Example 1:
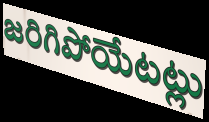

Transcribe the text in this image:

జరిగిపోయేటట్లు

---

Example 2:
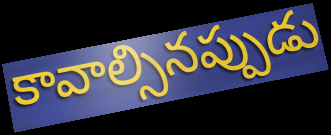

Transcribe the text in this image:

కావాల్సినప్పుడు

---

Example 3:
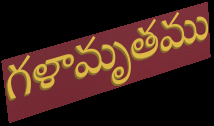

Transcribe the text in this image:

గళామృతము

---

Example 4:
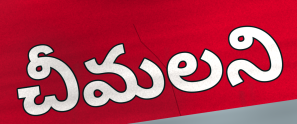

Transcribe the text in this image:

చీమలని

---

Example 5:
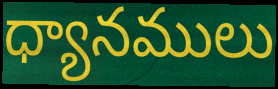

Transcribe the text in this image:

ధ్యానములు